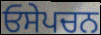
ਓਸੇਪਚਨ